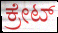
ಕ್ರೇಟ್